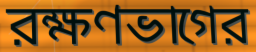
রক্ষণভাগের